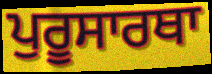
ਪੁਰੂਸਾਰਥਾ